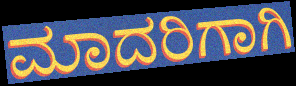
ಮಾದರಿಗಾಗಿ